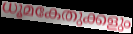
ധൂമകേതുക്കളും